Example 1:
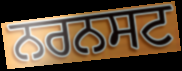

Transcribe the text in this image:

ਨਰਨਸਟ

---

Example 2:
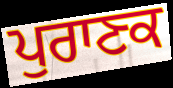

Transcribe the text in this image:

ਪੁਰਾਣਕ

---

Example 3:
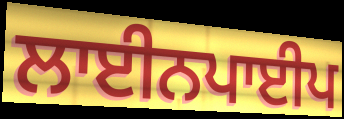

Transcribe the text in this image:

ਲਾਈਨਪਾਈਪ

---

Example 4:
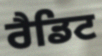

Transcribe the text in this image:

ਰੈਡਿਟ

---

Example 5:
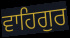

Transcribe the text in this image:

ਵਾਹਿਗੁਰ